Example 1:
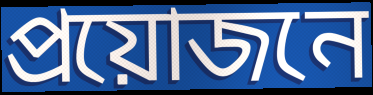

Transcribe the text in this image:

প্ৰয়োজনে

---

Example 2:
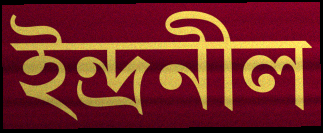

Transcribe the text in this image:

ইন্দ্ৰনীল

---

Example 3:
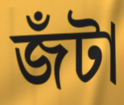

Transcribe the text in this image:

জঁটা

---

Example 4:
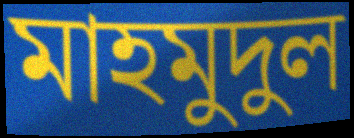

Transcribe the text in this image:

মাহমুদুল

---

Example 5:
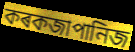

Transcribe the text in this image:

কৰকজাপানিজ